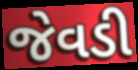
જેવડી